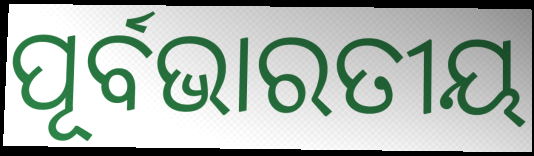
ପୂର୍ବଭାରତୀୟ